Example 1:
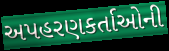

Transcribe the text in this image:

અપહરણકર્તાઓની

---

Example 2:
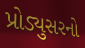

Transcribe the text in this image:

પ્રોડ્યુસરનો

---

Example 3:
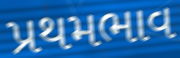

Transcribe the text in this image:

પ્રથમભાવ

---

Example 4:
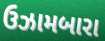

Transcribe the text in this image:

ઉઝામબારા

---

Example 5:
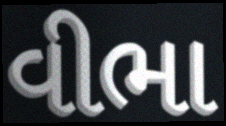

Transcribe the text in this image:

વીભા